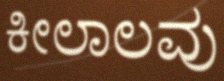
ಕೀಲಾಲವು